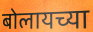
बोलायच्या